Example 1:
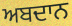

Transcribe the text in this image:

ਅਬਦਾਨ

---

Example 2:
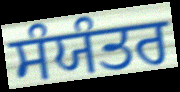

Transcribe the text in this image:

ਸੰਯੰਤਰ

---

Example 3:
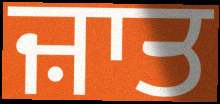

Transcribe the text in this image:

ਜ਼ਾਤ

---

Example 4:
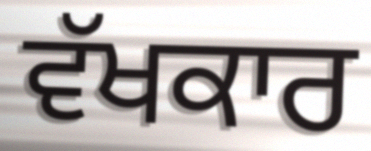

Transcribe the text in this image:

ਵੱਖਕਾਰ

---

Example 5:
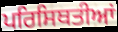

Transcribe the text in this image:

ਪਰਿਸਿਥਤੀਆਂ